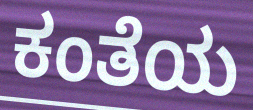
ಕಂತೆಯ